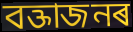
বক্তাজনৰ